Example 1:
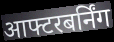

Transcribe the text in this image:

आफ्टरबर्निंग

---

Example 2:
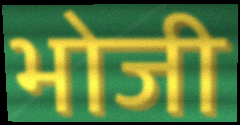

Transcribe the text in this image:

भोजी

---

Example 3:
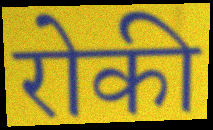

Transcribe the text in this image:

रोकी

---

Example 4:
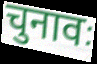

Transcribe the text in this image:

चुनावः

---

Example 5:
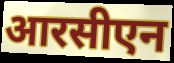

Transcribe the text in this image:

आरसीएन